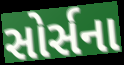
સોર્સના